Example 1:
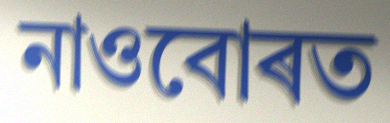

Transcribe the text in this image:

নাওবোৰত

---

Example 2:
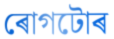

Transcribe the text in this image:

ৰোগটোৰ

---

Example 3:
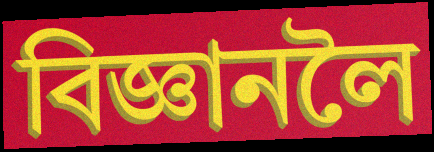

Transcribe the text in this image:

বিজ্ঞানলৈ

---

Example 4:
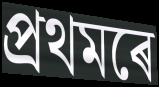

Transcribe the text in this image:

প্ৰথমৰে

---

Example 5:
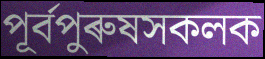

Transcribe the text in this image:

পূৰ্বপুৰুষসকলক